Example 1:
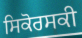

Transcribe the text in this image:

ਸਿਕੋਰਸਕੀ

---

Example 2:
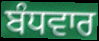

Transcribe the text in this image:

ਬੰਧਵਾਰ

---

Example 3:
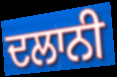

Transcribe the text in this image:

ਦਲਾਨੀ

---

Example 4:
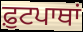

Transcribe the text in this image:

ਫ਼ੁਟਪਾਥਾਂ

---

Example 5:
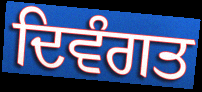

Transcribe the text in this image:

ਦਿਵੰਗਤ